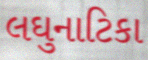
લઘુનાટિકા